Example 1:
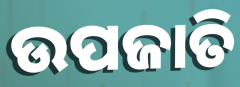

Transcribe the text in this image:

ଉପଜାତି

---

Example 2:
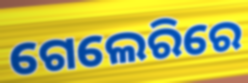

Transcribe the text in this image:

ଗେଲେରିରେ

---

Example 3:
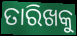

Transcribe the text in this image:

ତାରିଖକୁ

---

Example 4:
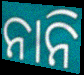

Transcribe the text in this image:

ନାନି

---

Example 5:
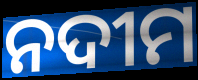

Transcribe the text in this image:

ନଦୀମ